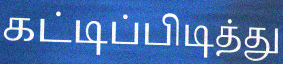
கட்டிப்பிடித்து